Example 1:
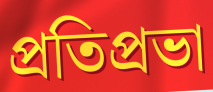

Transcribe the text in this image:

প্রতিপ্রভা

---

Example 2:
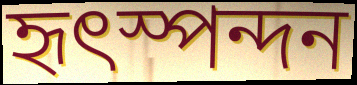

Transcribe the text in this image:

হৃৎস্পন্দন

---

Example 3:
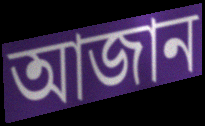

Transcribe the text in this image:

আজান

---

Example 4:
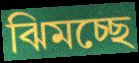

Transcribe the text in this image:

ঝিমচ্ছে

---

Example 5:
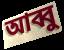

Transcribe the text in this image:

আব্বু